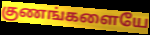
குணங்களையே